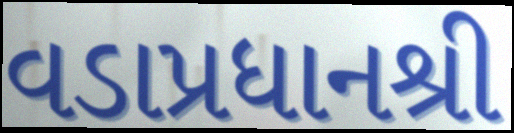
વડાપ્રધાનશ્રી